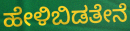
ಹೇಳಿಬಿಡತೇನೆ